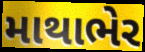
માથાભેર